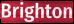
Brighton